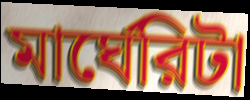
মার্ঘেরিটা